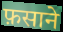
फ़साने